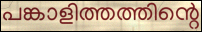
പങ്കാളിത്തത്തിന്റെ